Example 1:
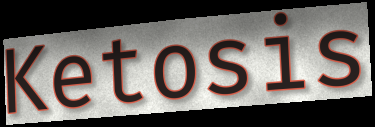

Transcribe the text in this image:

Ketosis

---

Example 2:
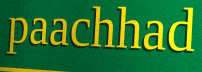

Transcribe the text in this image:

paachhad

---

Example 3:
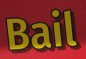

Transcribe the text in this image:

Bail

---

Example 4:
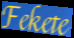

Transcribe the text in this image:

Fekete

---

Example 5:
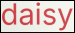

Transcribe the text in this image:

daisy